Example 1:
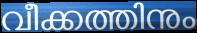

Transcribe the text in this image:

വീക്കത്തിനും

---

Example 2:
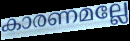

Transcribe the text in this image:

കാരണമല്ലേ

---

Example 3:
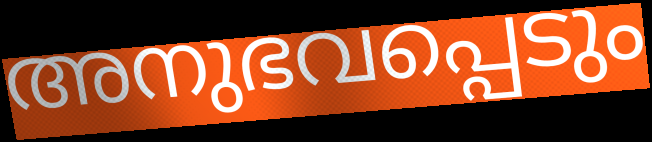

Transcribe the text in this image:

അനുഭവപ്പെടും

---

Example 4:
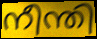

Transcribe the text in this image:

നീന്തി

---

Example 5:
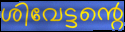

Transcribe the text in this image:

ശിവേട്ടന്റെ